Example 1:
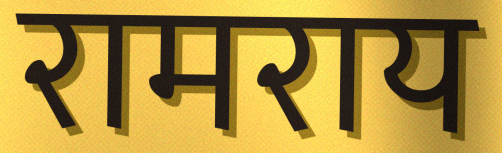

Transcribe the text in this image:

रामराय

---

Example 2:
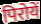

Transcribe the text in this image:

पिरोयें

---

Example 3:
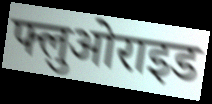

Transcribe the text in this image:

फ्लुओराइड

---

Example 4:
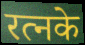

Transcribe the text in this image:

रत्नके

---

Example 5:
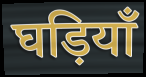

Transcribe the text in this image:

घड़ियाँ